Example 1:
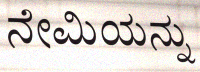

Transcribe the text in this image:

ನೇಮಿಯನ್ನು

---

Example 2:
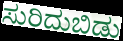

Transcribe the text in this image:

ಸುರಿದುಬಿಡು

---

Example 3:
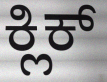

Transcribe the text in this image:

ಕ್ಲಿಕ್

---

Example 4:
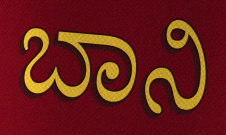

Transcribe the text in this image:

ಬಾನಿ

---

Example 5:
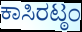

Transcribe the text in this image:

ಕಾಸಿರಟ್ಠಂ